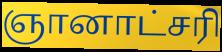
ஞானாட்சரி